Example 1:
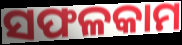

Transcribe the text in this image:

ସଫଳକାମ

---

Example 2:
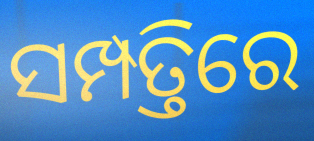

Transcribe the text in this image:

ସମ୍ପତ୍ତିରେ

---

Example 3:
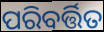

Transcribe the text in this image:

ପରିବର୍ତ୍ତିତ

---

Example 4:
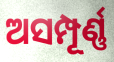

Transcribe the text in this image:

ଅସମ୍ପୂର୍ଣ୍ଣ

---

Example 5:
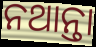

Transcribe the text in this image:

ନଥାନ୍ତା